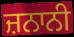
ਜ਼ਨਾਨੀ